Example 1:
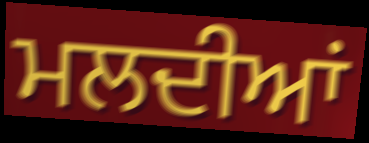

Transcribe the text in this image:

ਮਲਦੀਆਂ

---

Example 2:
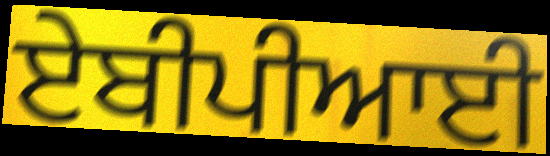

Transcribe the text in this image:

ਏਬੀਪੀਆਈ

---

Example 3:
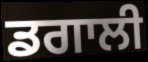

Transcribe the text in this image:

ਡਗਾਲੀ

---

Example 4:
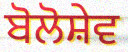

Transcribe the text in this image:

ਬੋਲੋਸ਼ੇਵ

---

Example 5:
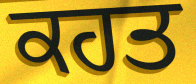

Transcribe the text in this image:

ਕਹਤ